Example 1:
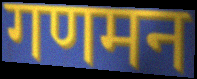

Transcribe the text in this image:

गणमन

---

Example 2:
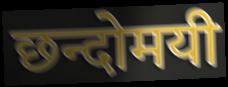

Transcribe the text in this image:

छन्दोमयी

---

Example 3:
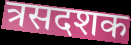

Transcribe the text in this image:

त्रसदशक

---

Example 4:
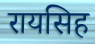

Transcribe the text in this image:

रायसिह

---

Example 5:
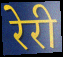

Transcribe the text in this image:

रेरी